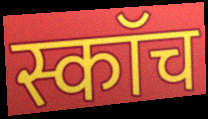
स्कॉच